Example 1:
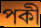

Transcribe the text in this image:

পকী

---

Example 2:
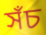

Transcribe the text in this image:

সঁচ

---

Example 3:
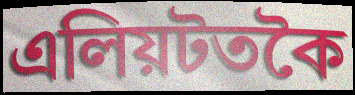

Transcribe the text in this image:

এলিয়টতকৈ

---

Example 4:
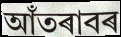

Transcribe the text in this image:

আঁতৰাবৰ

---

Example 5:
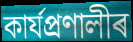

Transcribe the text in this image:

কাৰ্যপ্ৰণালীৰ